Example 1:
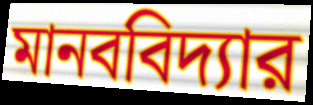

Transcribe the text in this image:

মানববিদ্যার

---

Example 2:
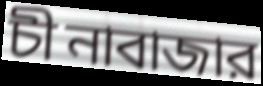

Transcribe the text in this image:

চীনাবাজার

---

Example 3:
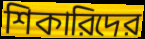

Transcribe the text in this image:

শিকারিদের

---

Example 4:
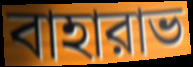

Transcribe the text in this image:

বাহারাভ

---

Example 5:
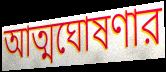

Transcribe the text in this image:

আত্মঘোষণার